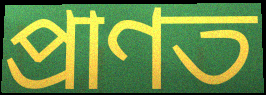
প্ৰাণত